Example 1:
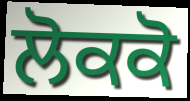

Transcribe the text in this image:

ਲੋਕਕੋ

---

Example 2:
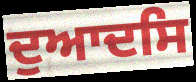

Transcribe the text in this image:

ਦੁਆਦਸਿ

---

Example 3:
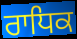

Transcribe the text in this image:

ਰਾਧਿਕ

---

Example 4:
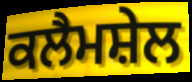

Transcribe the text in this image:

ਕਲੈਮਸ਼ੇਲ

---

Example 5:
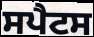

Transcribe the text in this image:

ਸਪੈਟਸ